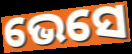
ଭେସେ